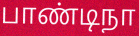
பாண்டிநா